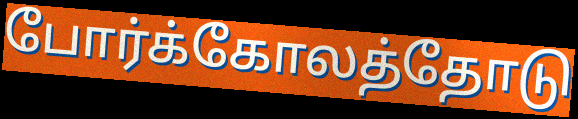
போர்க்கோலத்தோடு